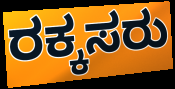
ರಕ್ಕಸರು